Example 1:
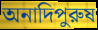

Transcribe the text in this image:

অনাদিপুরুষ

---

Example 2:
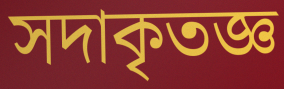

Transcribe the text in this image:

সদাকৃতজ্ঞ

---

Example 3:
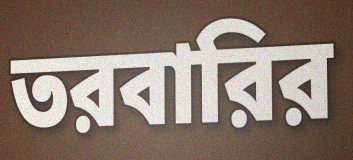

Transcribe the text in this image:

তরবারির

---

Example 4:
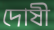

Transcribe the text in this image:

দোষী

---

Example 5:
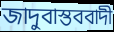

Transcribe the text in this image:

জাদুবাস্তববাদী